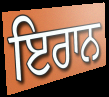
ਇਰਾਨ